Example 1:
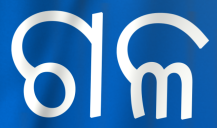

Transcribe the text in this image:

ଗଳ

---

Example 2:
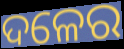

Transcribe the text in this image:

ଦଳେର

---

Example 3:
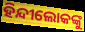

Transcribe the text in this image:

ହିନ୍ଦୀଲୋକଙ୍କୁ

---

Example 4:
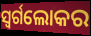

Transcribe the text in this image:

ସ୍ୱର୍ଗଲୋକର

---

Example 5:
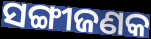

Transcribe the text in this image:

ସଙ୍ଗୀଜଣକ